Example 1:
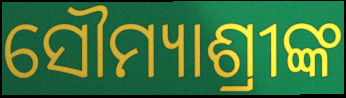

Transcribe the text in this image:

ସୌମ୍ୟାଶ୍ରୀଙ୍କ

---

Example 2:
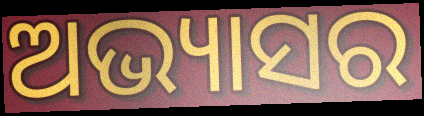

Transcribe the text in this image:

ଅଭ୍ୟାସର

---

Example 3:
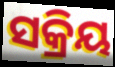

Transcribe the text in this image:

ସକ୍ରିୟ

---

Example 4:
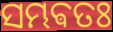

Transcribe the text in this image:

ସମ୍ଭଵତଃ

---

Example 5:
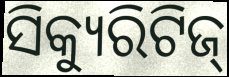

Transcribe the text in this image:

ସିକ୍ୟୁରିଟିଜ୍